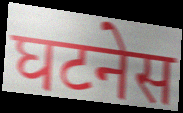
घटनेस